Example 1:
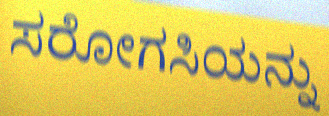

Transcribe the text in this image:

ಸರೋಗಸಿಯನ್ನು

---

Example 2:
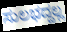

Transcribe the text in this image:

ಸುಲಭದ್ದಲ್ಲ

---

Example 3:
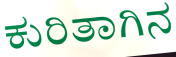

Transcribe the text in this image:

ಕುರಿತಾಗಿನ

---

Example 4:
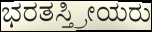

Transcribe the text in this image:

ಭರತಸ್ತ್ರೀಯರು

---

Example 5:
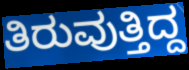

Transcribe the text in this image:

ತಿರುವುತ್ತಿದ್ದ